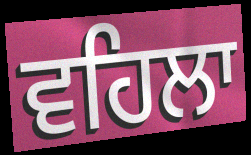
ਵਹਿਲਾ